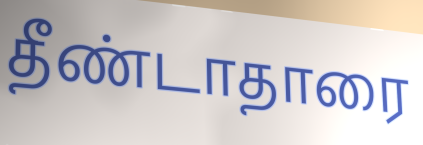
தீண்டாதாரை